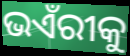
ଭଏଁରୀକୁ